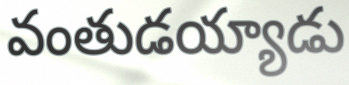
వంతుడయ్యాడు